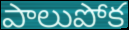
పాలుపోక